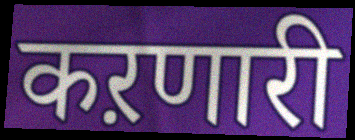
कऱणारी